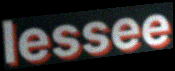
lessee